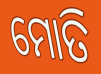
ମୋତି